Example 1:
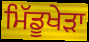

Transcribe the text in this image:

ਮਿੱਡੂਖੇੜਾ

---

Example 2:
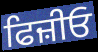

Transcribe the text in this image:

ਫਿਜ਼ੀਓ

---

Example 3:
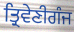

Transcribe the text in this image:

ਤ੍ਰਿਵੇਣੀਗੰਜ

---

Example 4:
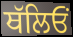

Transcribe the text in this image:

ਥੱਲਿਓਂ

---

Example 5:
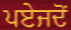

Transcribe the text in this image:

ਪਏਜਦੋਂ